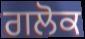
ਗਲੋਕ